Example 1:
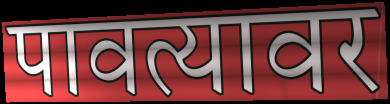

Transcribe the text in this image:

पावत्यावर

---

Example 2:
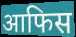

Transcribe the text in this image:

आफिस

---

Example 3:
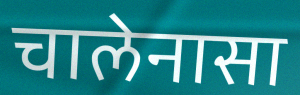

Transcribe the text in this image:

चालेनासा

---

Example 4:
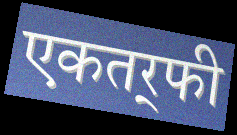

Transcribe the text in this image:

एकतर्फी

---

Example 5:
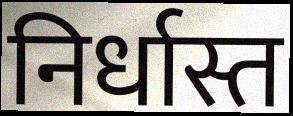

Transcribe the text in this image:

निर्धास्त